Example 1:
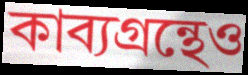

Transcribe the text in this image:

কাব্যগ্রন্থেও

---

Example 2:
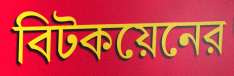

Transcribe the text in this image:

বিটকয়েনের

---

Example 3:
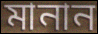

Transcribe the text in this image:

মানান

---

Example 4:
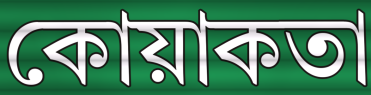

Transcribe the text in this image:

কোয়াকতা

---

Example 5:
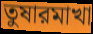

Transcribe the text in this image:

তুষারমাখা